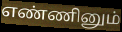
எண்ணினும்